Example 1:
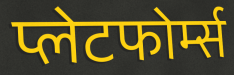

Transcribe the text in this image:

प्लेटफोर्म्स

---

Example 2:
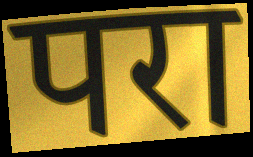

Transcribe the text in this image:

परा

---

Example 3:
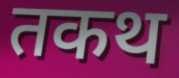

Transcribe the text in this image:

तकथ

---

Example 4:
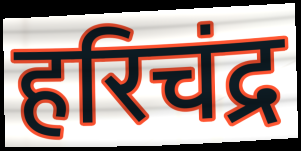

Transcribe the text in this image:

हरिचंद्र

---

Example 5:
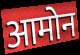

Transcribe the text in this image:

आमोन